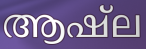
ആഷ്ല